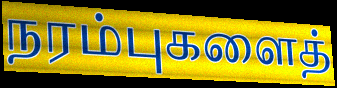
நரம்புகளைத்